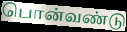
பொன்வண்டு